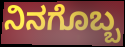
ನಿನಗೊಬ್ಬ